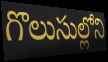
గొలుసుల్లోని